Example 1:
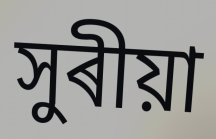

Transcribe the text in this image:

সুৰীয়া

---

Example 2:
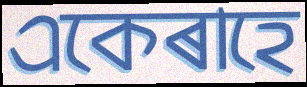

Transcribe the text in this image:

একেৰাহে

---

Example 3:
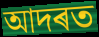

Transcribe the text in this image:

আদৰত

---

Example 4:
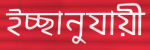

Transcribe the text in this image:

ইচ্ছানুযায়ী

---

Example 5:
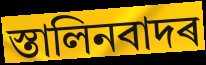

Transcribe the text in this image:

স্তালিনবাদৰ